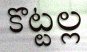
కొట్టల్ల